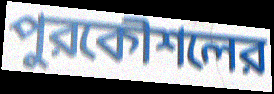
পুরকৌশলের